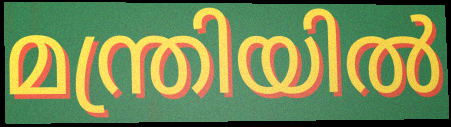
മന്ത്രിയിൽ